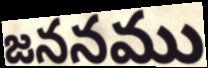
జననము